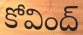
కోవింద్